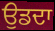
ਉਡਦਾ